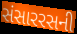
સંસારરસની